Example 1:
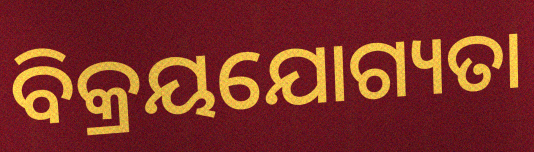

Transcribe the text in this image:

ବିକ୍ରୟଯୋଗ୍ୟତା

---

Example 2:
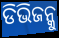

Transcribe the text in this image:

ଡିଭିଜନ୍କୁ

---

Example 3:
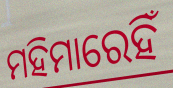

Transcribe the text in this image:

ମହିମାରେହିଁ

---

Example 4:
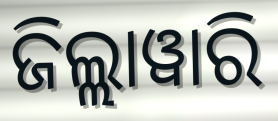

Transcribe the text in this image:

ଜିଲ୍ଲାୱାରି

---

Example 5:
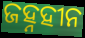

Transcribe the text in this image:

ଜହ୍ନହୀନ